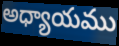
అధ్యాయము